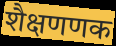
शैक्षणणक